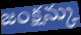
జంక్షన్కు